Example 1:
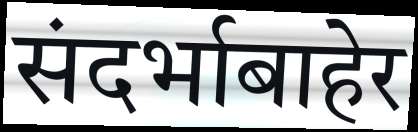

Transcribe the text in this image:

संदर्भाबाहेर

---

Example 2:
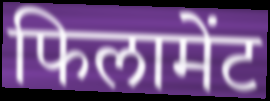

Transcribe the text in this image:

फिलामेंट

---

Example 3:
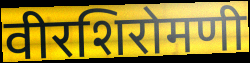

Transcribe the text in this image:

वीरशिरोमणी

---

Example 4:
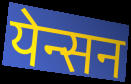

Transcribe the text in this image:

येन्सन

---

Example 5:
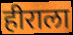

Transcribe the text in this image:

हीराला